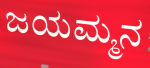
ಜಯಮ್ಮನ